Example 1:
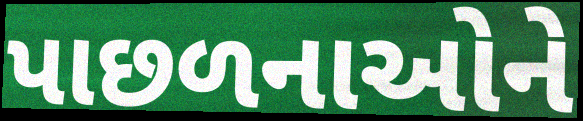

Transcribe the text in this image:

પાછળનાઓને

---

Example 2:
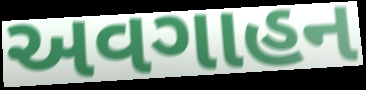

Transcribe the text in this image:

અવગાહન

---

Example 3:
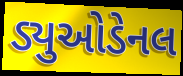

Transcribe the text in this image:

ડ્યુઓડેનલ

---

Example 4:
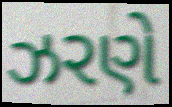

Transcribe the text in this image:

ઝરણે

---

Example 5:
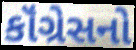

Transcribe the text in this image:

કૉંગ્રેસનો